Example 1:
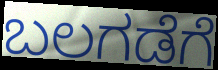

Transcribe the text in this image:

ಬಲಗಡೆಗೆ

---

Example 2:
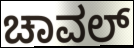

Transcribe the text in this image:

ಚಾವಲ್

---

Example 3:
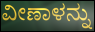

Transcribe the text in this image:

ವೀಣಾಳನ್ನು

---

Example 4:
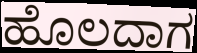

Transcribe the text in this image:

ಹೊಲದಾಗ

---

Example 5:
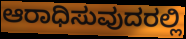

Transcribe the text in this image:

ಆರಾಧಿಸುವುದರಲ್ಲಿ